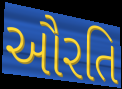
ઔરતિ